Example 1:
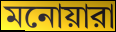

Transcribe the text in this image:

মনোয়ারা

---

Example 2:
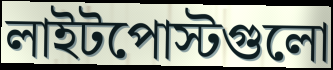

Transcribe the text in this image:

লাইটপোস্টগুলো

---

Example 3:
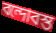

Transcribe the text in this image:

বন্দোবস্ত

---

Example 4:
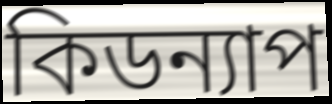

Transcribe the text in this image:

কিডন্যাপ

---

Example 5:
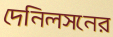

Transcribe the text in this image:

দেনিলসনের